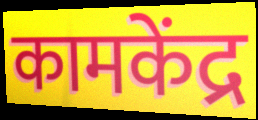
कामकेंद्र